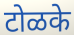
टोळके